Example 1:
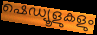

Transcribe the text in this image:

ഷെഡ്യൂളുകളും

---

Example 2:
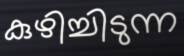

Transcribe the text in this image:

കുഴിച്ചിടുന്ന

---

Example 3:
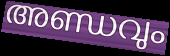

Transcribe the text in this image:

അണ്ഡവും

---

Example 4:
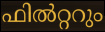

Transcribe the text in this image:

ഫിൽറ്ററും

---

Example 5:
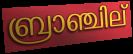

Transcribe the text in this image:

ബ്രാഞ്ചില്